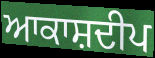
ਆਕਾਸ਼ਦੀਪ